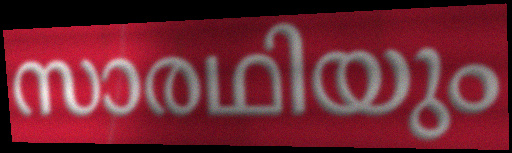
സാരഥിയും